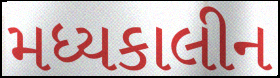
મધ્યકાલીન